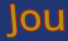
Jou